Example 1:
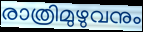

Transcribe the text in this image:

രാത്രിമുഴുവനും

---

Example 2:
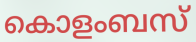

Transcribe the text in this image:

കൊളംബസ്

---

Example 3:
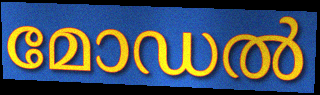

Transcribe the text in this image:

മോഡൽ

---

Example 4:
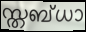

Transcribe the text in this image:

സ്തബ്ധാ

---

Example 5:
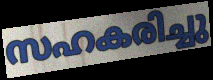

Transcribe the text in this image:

സഹകരിച്ചു